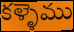
కళ్ళెము